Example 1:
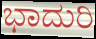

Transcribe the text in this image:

ಭಾದುರಿ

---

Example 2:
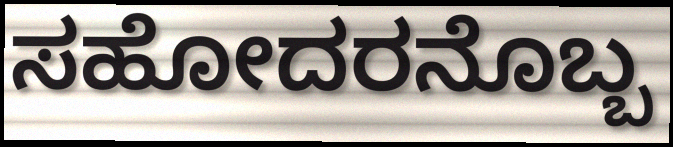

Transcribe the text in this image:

ಸಹೋದರನೊಬ್ಬ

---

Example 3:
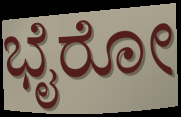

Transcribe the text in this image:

ಭೈರೋ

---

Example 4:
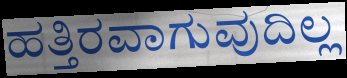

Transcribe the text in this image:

ಹತ್ತಿರವಾಗುವುದಿಲ್ಲ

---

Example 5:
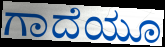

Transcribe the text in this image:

ಗಾದೆಯೂ